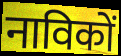
नाविकों